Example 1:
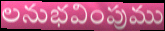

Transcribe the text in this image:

లనుభవింపుము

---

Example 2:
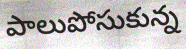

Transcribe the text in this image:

పాలుపోసుకున్న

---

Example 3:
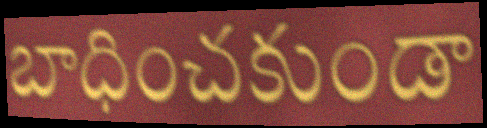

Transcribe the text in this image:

బాధించకుండా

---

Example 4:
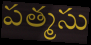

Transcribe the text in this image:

పత్మసు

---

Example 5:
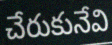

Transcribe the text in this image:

చేరుకునేవి